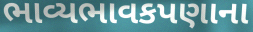
ભાવ્યભાવકપણાના